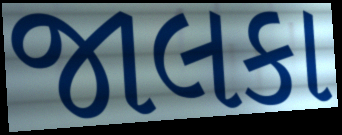
જાલકા